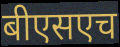
बीएसएच